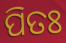
ପିତଃ